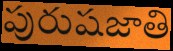
పురుషజాతి